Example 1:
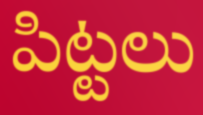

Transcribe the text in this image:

పిట్టలు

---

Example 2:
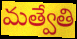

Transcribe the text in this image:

మత్వేతి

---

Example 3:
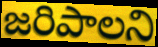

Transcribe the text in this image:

జరిపాలని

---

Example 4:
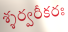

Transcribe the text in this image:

శ్శర్వరీకరః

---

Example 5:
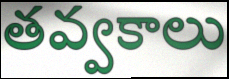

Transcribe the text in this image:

తవ్వకాలు